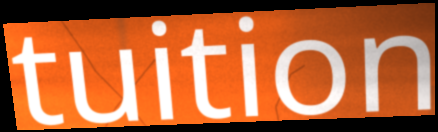
tuition